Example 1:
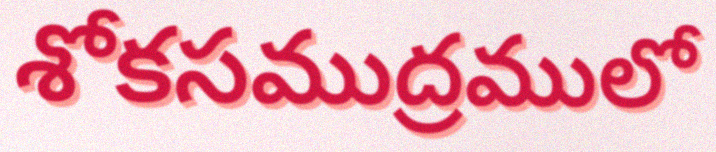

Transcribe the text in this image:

శోకసముద్రములో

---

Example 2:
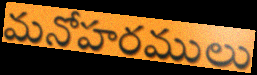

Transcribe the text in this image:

మనోహరములు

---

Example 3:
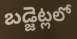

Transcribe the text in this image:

బడ్జెట్లలో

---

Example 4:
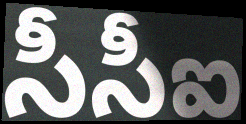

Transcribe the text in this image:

సీసీఐ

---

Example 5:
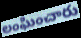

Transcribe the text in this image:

లంఘించారు